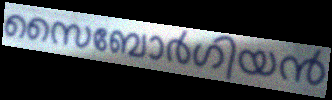
സൈബോർഗിയൻ